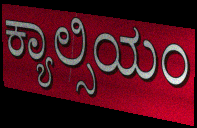
ಕ್ಯಾಲ್ಸಿಯಂ